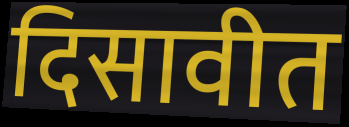
दिसावीत